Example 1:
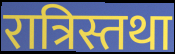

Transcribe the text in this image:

रात्रिस्तथा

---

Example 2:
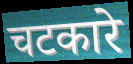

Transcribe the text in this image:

चटकारे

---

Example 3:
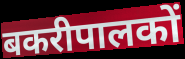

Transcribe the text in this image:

बकरीपालकों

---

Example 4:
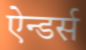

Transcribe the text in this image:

ऐन्डर्स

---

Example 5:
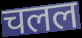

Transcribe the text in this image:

चलल